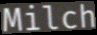
Milch